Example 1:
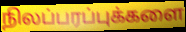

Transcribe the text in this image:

நிலப்பரப்புக்களை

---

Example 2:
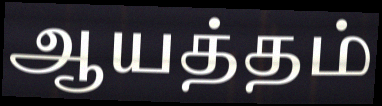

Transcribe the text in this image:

ஆயத்தம்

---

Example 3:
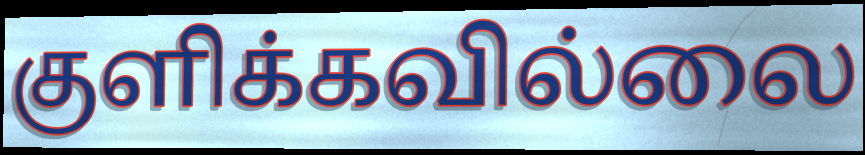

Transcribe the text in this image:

குளிக்கவில்லை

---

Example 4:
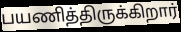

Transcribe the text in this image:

பயணித்திருக்கிறார்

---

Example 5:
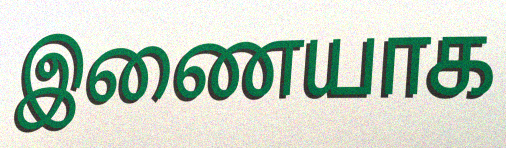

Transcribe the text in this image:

இணையாக